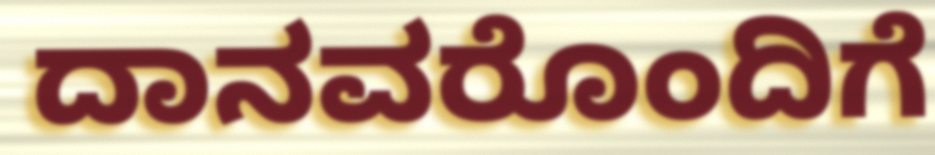
ದಾನವರೊಂದಿಗೆ